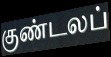
குண்டலப்